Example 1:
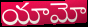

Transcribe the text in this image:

యామో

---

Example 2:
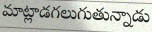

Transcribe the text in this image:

మాట్లాడగలుగుతున్నాడు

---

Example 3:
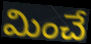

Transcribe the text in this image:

మించే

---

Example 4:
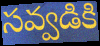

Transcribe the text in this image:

సవ్వడికి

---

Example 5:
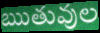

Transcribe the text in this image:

ఋతువుల